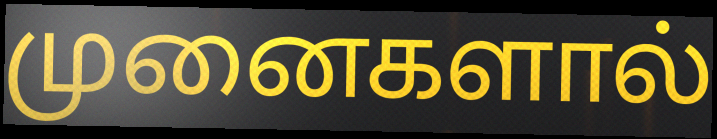
முனைகளால்